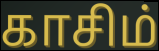
காசிம்